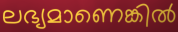
ലഭ്യമാണെങ്കിൽ